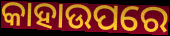
କାହାଉପରେ